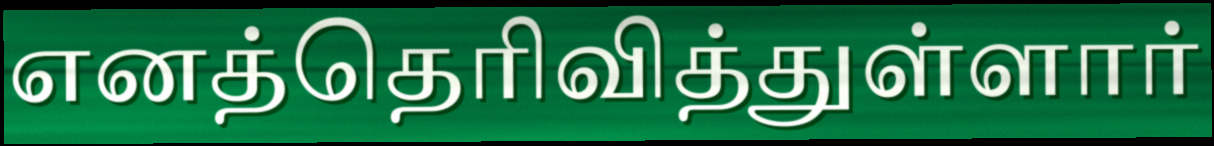
எனத்தெரிவித்துள்ளார்